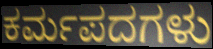
ಕರ್ಮಪದಗಳು